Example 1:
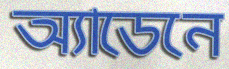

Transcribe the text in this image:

অ্যাডেনে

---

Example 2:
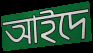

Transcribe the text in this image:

আইদে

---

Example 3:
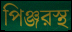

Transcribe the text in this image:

পিঞ্জরস্থ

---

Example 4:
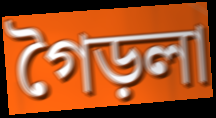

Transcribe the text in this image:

গৈড়লা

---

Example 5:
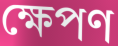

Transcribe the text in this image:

ক্ষেপণ